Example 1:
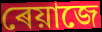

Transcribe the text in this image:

ৰেয়াজে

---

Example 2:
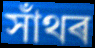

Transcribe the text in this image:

সাঁথৰ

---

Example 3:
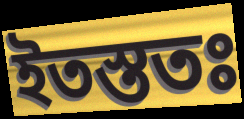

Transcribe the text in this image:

ইতস্ততঃ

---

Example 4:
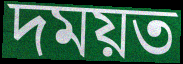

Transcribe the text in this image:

দময়ত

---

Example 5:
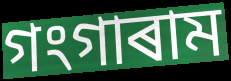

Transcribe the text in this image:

গংগাৰাম